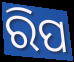
ରିପ